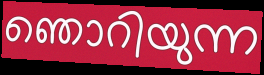
ഞൊറിയുന്ന